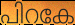
പിറകേ